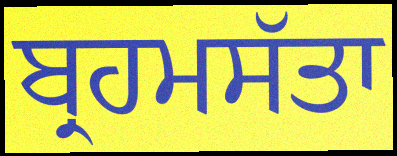
ਬ੍ਰਹਮਸੱਤਾ